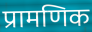
प्रामणिक